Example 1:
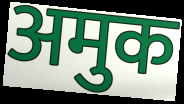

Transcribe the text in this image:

अमुक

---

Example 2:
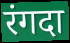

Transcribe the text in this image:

रंगदा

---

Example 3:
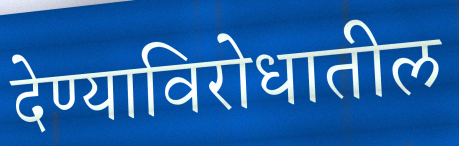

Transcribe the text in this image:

देण्याविरोधातील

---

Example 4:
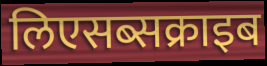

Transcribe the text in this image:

लिएसब्सक्राइब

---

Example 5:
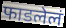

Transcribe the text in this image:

फाडलेलं